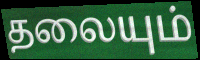
தலையும்